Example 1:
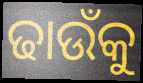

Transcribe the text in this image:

ଢାଉଁକୁ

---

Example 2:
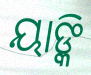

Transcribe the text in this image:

ୟାଙ୍କି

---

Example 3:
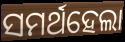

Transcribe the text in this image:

ସମର୍ଥହେଲା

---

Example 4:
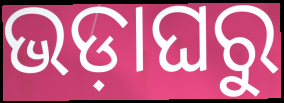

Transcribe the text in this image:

ଭଡ଼ାଘରୁ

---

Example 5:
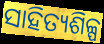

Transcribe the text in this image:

ସାହିତ୍ୟଶିଳ୍ପ